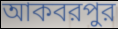
আকবরপুর